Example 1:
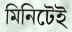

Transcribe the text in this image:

মিনিটেই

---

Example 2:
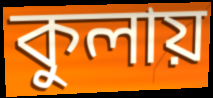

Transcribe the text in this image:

কুলায়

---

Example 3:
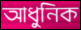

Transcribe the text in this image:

আধুনিক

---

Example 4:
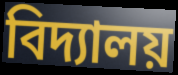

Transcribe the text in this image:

বিদ্যালয়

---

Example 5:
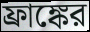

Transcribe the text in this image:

ফ্রাঙ্কের